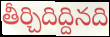
తీర్చిదిద్దినది